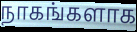
நாகங்களாக